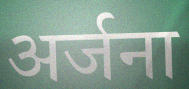
अर्जना